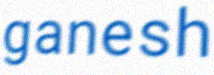
ganesh